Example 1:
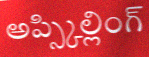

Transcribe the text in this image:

అప్స్కిల్లింగ్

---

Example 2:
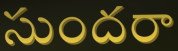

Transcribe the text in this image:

సుందరా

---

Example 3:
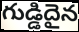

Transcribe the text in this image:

గుడ్డిదైన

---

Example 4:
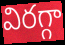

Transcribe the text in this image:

విరగ్గా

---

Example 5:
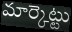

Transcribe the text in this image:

మార్కెట్టు